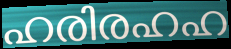
ഹരിരഹഹ